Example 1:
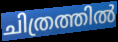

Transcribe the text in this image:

ചിത്രത്തിൽ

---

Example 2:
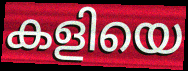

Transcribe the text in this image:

കളിയെ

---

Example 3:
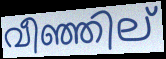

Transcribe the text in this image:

വീഞ്ഞില്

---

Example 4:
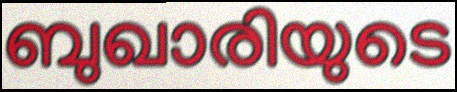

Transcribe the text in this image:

ബുഖാരിയുടെ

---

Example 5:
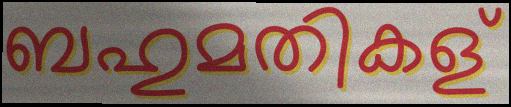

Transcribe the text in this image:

ബഹുമതികള്